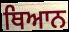
ਥਿਆਨ